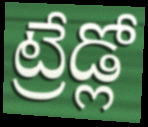
ట్రేడ్లో